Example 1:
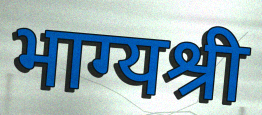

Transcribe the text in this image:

भाग्यश्री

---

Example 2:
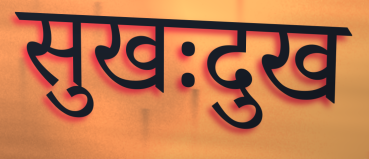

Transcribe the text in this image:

सुखःदुख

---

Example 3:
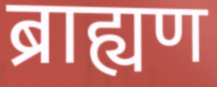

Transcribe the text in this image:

ब्राह्यण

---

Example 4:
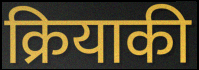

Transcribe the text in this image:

क्रियाकी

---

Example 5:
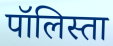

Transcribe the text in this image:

पॉलिस्ता